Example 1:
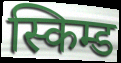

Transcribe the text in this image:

स्किम्ड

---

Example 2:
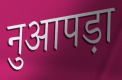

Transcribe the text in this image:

नुआपड़ा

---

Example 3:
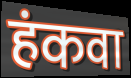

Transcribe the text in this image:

हंकवा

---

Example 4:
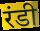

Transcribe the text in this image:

रंडी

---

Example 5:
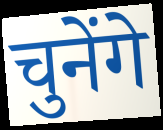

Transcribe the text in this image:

चुनेंगे